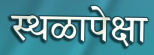
स्थळापेक्षा